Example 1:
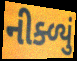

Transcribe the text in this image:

નીક્ળ્યું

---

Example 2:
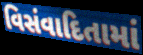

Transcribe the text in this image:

વિસંવાદિતામાં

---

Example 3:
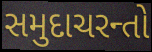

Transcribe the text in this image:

સમુદાચરન્તો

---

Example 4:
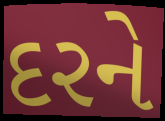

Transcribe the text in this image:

દરને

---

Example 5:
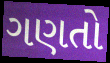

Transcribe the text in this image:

ગણતો